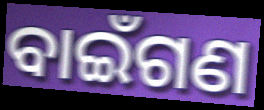
ବାଇଁଗଣ